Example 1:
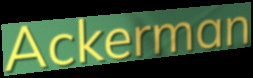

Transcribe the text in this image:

Ackerman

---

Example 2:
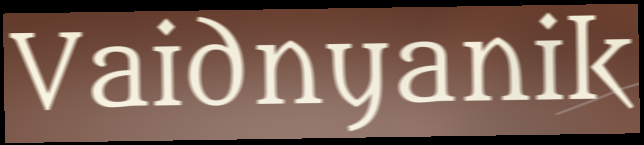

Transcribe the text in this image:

Vaidnyanik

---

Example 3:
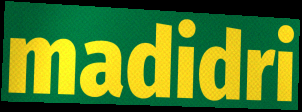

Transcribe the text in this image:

madidri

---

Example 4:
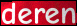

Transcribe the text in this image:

deren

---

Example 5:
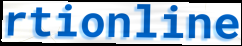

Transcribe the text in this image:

rtionline